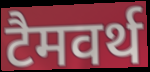
टैमवर्थ